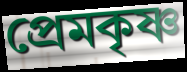
প্রেমকৃষ্ণ